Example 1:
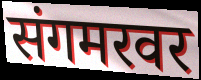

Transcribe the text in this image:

संगमरवर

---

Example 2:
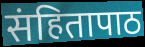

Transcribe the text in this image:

संहितापाठ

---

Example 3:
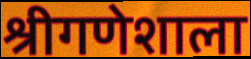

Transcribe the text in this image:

श्रीगणेशाला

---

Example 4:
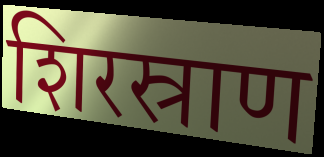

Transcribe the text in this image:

शिरस्राण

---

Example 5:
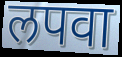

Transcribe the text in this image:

लपवा